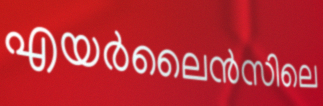
എയർലൈൻസിലെ